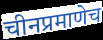
चीनप्रमाणेच